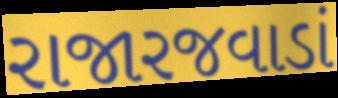
રાજારજવાડાં